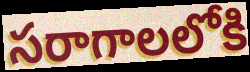
సరాగాలలోకి